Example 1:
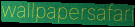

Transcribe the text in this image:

wallpapersafari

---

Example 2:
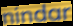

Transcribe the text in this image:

nindar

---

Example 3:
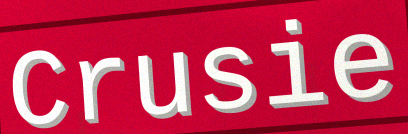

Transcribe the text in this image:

Crusie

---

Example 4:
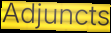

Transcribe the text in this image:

Adjuncts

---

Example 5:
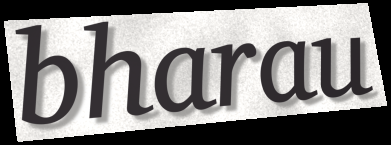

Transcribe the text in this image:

bharau